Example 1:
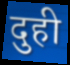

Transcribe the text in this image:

दुही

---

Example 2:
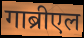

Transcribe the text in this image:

गाब्रीएल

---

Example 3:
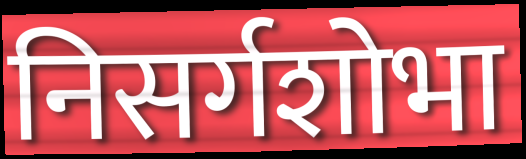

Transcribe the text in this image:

निसर्गशोभा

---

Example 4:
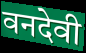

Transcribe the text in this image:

वनदेवी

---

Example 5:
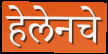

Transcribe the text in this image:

हेलेनचे